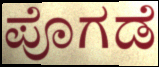
ಪೊಗಡೆ